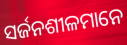
ସର୍ଜନଶୀଳମାନେ